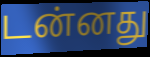
டன்னது